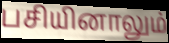
பசியினாலும்